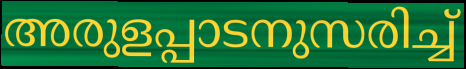
അരുളപ്പാടനുസരിച്ച്